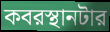
কবরস্থানটার